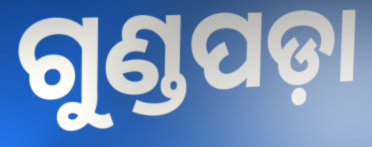
ଗୁଣ୍ଡପଡ଼ା